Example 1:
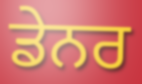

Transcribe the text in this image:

ਡੇਨਰ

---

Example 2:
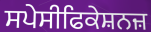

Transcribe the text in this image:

ਸਪੇਸੀਫਿਕੇਸ਼ਨਜ਼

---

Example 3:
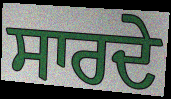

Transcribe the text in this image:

ਸਾਰਦੇ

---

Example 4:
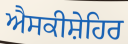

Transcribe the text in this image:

ਐਸਕੀਸ਼ੇਹਿਰ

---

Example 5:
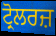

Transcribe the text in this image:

ਟ੍ਰੋਲਰਜ਼